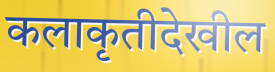
कलाकृतीदेखील